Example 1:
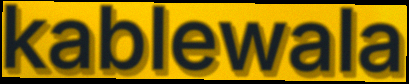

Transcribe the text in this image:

kablewala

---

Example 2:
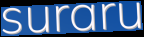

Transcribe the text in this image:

suraru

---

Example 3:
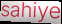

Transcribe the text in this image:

sahiye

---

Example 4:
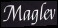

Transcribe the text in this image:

Maglev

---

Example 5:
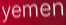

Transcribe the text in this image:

yemen